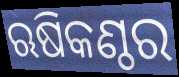
ଋଷିକଣ୍ଠର